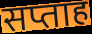
सप्‍ताह